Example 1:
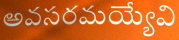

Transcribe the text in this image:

అవసరమయ్యేవి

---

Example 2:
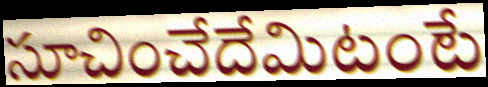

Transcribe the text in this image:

సూచించేదేమిటంటే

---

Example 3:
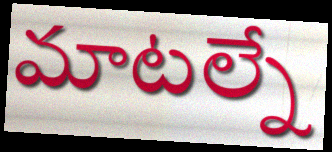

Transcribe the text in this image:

మాటల్నే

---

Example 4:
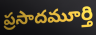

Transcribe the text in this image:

ప్రసాదమూర్తి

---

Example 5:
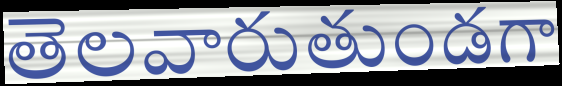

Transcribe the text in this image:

తెలవారుతుండగా